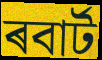
ৰবাৰ্ট